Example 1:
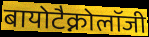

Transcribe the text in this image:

बायोटैक्नोलॉजी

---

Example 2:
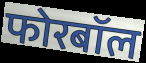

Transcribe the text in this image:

फोरबॉल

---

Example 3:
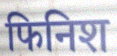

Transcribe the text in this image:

फिनिश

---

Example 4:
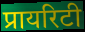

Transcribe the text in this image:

प्रायरिटी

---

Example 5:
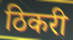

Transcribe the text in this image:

ठिकरी